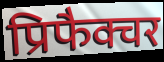
प्रिफैक्चर